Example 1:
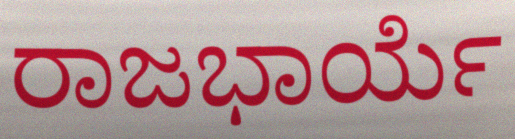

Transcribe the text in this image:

ರಾಜಭಾರ್ಯೆ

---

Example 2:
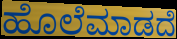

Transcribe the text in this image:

ಹೊಲೆಮಾಡದೆ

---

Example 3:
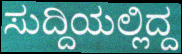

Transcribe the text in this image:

ಸುದ್ದಿಯಲ್ಲಿದ್ದ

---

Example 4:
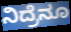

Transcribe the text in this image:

ನಿದ್ರೆನೂ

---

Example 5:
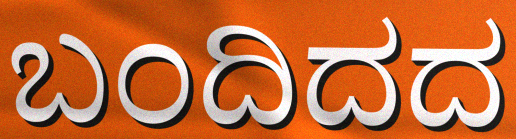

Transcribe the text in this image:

ಬಂದಿದದ